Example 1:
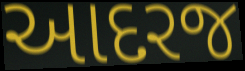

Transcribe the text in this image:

આદરજ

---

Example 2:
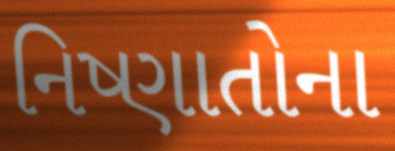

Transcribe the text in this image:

નિષ્ણાતોના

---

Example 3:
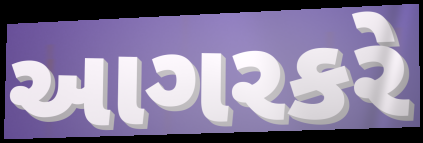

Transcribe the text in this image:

આગરકરે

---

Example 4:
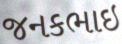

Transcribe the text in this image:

જનકભાઇ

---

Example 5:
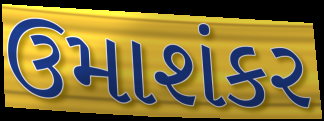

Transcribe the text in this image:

ઉમાશંકર